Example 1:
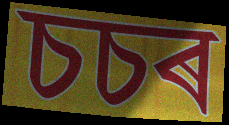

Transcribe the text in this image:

চচৰ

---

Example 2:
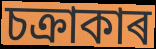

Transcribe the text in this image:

চক্ৰাকাৰ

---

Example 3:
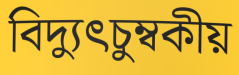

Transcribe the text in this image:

বিদ্যুৎচুম্বকীয়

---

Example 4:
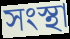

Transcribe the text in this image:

সংস্থা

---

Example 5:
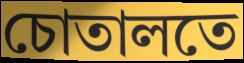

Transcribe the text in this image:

চোতালতে